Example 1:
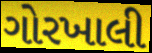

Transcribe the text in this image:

ગોરખાલી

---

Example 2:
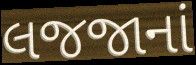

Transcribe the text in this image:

લજજાનાં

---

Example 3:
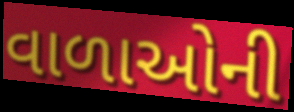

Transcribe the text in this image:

વાળાઓની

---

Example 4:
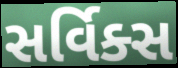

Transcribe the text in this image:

સર્વિક્સ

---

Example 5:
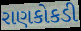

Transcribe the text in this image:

રાણકોકડી